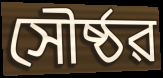
সৌষ্ঠৱ